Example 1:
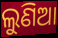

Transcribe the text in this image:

ଲୁଣିଆ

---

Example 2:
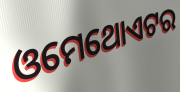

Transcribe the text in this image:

ଓମେଥୋଏଟର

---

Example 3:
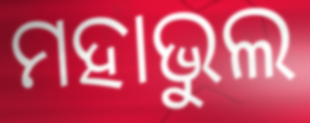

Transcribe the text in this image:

ମହାଭୁଲ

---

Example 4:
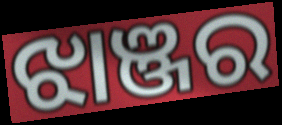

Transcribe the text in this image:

ଝାଞ୍ଜର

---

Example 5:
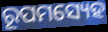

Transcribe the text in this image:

ରୂପମସ୍ୟେହ